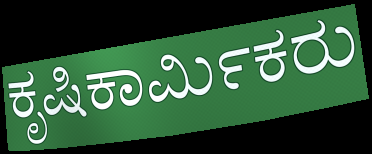
ಕೃಷಿಕಾರ್ಮಿಕರು